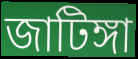
জাটিঙ্গা